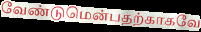
வேண்டுமென்பதற்காகவே